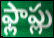
ఫ్లాప్లు